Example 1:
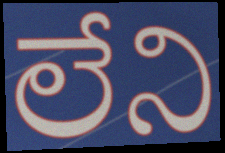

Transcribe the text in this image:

లేని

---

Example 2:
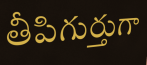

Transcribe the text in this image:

తీపిగుర్తుగా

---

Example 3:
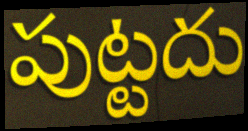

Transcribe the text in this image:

పుట్టదు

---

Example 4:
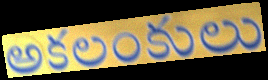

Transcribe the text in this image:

అకలంకులు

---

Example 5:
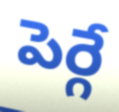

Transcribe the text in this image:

పెర్గే